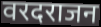
वरदराजन